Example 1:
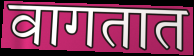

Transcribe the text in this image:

वागतात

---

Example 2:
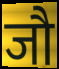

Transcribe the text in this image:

जौ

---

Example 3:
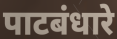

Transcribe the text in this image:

पाटबंधारे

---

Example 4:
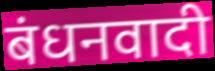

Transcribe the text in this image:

बंधनवादी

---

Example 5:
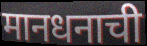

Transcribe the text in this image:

मानधनाची